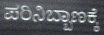
ಪರಿನಿಬ್ಬಾಣಕ್ಕೆ